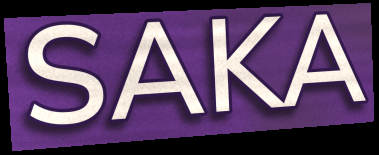
SAKA